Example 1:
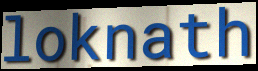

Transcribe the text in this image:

loknath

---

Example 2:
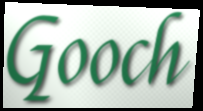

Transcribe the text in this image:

Gooch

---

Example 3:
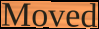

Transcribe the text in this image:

Moved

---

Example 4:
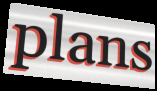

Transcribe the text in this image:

plans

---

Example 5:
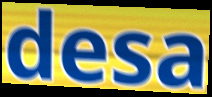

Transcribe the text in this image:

desa